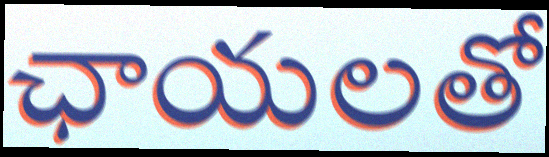
ఛాయలతో